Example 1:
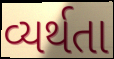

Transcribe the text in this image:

વ્યર્થતા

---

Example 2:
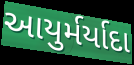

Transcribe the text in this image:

આયુર્મર્યાદા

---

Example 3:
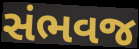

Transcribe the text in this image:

સંભવજ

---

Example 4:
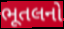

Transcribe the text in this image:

ભૂતલનો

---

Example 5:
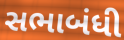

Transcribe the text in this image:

સભાબંધી